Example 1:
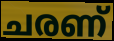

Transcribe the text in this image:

ചരണ്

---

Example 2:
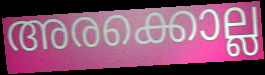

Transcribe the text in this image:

അരക്കൊല്ല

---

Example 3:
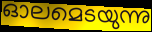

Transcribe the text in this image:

ഓലമെടയുന്നു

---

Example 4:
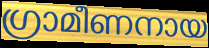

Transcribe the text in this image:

ഗ്രാമീണനായ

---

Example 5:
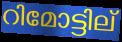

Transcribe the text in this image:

റിമോട്ടില്